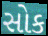
સોક